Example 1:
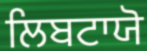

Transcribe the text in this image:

ਲਿਬਟਾਯੋ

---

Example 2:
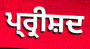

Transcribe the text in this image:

ਪ੍ਰ੍ਰੀਸ਼ਦ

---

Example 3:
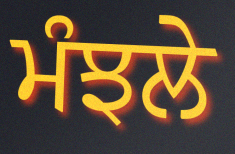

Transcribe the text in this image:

ਮੰਝਲੇ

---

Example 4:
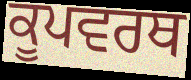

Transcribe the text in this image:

ਕੂਪਵਰਥ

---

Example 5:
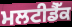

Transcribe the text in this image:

ਮਲਟੀਡੈੱਕ